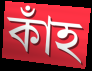
কাঁহ